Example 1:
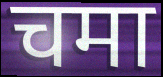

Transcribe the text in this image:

चमा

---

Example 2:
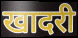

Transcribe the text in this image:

खादरी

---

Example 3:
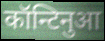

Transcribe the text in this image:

कॉन्टिनुआ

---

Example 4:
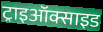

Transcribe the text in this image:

ट्राइऑक्साइड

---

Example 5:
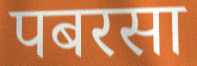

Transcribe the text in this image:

पबरसा